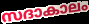
സദാകാലം